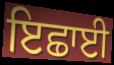
ਇਛਾਈ